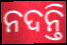
ନଦନ୍ତି